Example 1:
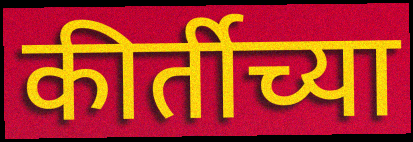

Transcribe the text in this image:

कीर्तीच्या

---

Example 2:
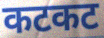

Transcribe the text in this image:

कटकट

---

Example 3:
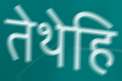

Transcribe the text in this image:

तेथेहि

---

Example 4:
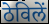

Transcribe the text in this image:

ठेविलें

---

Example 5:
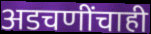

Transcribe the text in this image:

अडचणींचाही